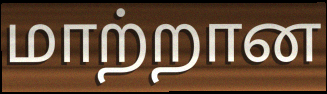
மாற்றான